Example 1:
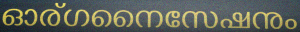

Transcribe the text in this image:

ഓര്ഗനൈസേഷനും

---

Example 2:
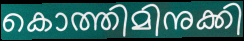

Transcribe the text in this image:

കൊത്തിമിനുക്കി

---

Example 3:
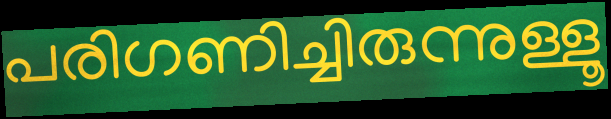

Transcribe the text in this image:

പരിഗണിച്ചിരുന്നുള്ളൂ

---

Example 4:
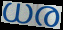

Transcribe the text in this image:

ധര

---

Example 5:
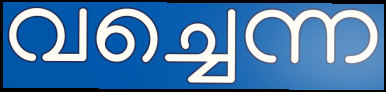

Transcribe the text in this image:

വച്ചെന്ന